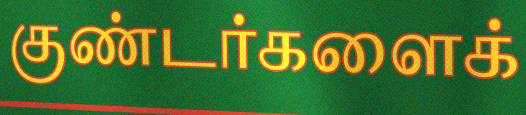
குண்டர்களைக்